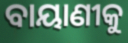
ବାୟାଣୀକୁ